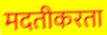
मदतीकरता